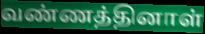
வண்ணத்தினாள்